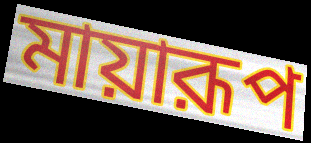
মায়ারূপ